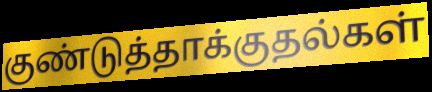
குண்டுத்தாக்குதல்கள்